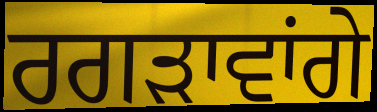
ਰਗੜਾਵਾਂਗੇ